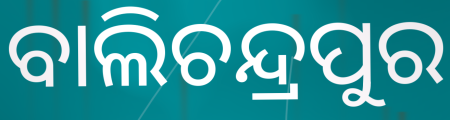
ବାଲିଚନ୍ଦ୍ରପୁର